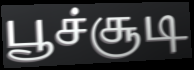
பூச்சூடி